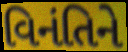
વિનંતિને